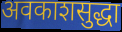
अवकाशसुद्धा